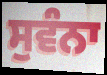
ਸੁਵੰਨਾ